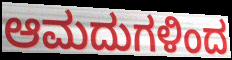
ಆಮದುಗಳಿಂದ